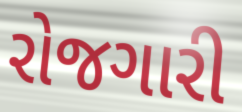
રોજગારી